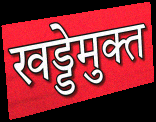
खड्डेमुक्त